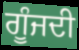
ਗੂੰਜਦੀ